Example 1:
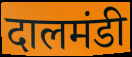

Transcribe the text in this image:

दालमंडी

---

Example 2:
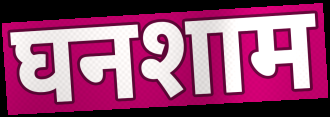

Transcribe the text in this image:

घनशाम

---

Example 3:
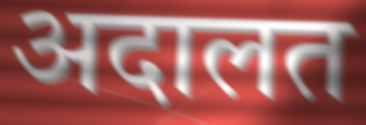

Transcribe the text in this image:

अदालत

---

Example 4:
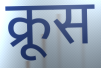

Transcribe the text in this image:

क्रूस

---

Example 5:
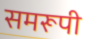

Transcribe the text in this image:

समरूपी